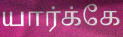
யார்க்கே